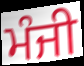
ਮੰਜੀ